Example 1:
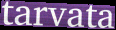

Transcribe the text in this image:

tarvata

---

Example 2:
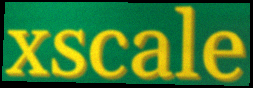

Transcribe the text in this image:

xscale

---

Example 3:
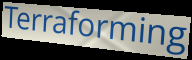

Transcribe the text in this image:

Terraforming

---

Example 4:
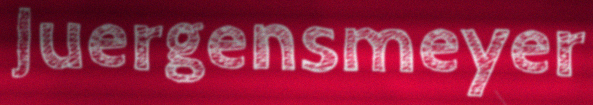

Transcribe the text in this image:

Juergensmeyer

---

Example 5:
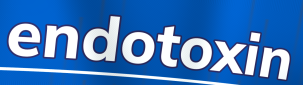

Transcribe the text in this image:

endotoxin